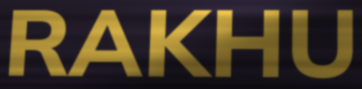
RAKHU